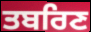
ਤਬਰਿਣ